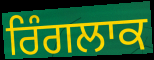
ਰਿੰਗਲਾਕ